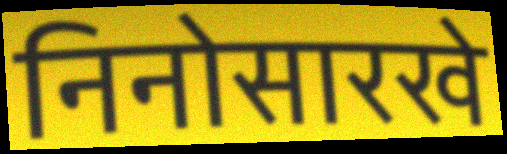
निनोसारखे